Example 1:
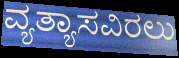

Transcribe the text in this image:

ವ್ಯತ್ಯಾಸವಿರಲು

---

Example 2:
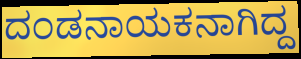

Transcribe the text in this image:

ದಂಡನಾಯಕನಾಗಿದ್ದ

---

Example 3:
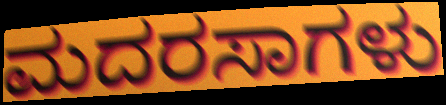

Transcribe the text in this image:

ಮದರಸಾಗಳು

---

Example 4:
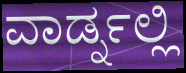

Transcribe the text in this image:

ವಾರ್ಡ್ನಲ್ಲಿ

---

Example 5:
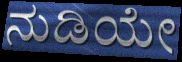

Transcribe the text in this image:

ನುಡಿಯೇ